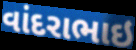
વાંદરાભાઇ